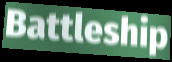
Battleship